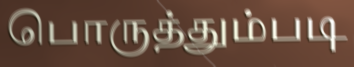
பொருத்தும்படி